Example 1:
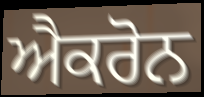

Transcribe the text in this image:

ਐਕਰੋਨ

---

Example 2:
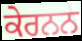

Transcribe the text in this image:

ਕੇਰਨਨ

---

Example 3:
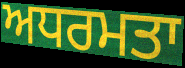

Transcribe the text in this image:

ਅਧਰਮਤਾ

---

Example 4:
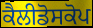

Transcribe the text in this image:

ਕੈਲੀਡੋਸਕੋਪ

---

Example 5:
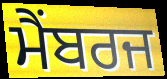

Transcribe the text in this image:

ਮੈਂਬਰਜ